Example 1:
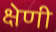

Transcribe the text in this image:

क्षेणी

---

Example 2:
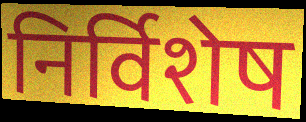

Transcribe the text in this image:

निर्विशेष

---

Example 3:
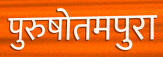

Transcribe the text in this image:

पुरुषोतमपुरा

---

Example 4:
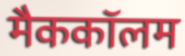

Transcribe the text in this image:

मैककॉलम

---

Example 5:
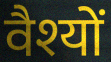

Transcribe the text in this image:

वैश्‍यों